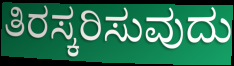
ತಿರಸ್ಕರಿಸುವುದು